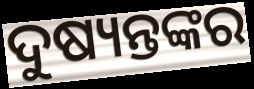
ଦୁଷ୍ୟନ୍ତଙ୍କର